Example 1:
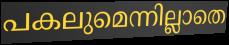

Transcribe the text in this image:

പകലുമെന്നില്ലാതെ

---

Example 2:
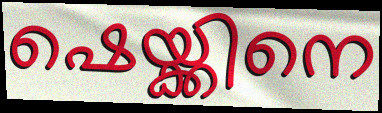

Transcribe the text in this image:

ഷെയ്ക്കിനെ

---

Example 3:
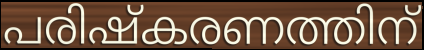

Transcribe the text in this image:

പരിഷ്കരണത്തിന്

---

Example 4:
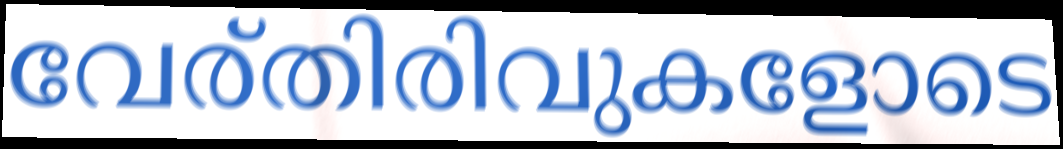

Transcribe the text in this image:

വേര്തിരിവുകളോടെ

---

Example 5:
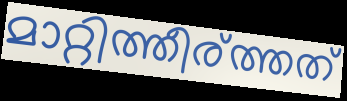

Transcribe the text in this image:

മാറ്റിത്തീര്ത്തത്